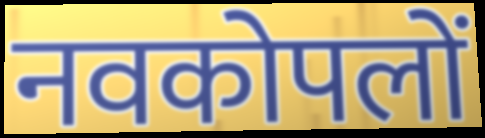
नवकोपलों